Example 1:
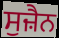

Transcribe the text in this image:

ਸੁਜ਼ੈਨ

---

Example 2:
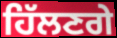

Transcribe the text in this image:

ਹਿੱਲਣਗੇ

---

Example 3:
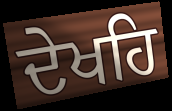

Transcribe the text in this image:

ਦੇਖਹਿ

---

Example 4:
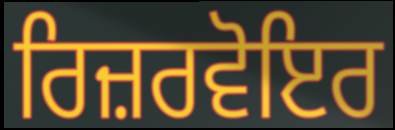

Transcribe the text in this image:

ਰਿਜ਼ਰਵੋਇਰ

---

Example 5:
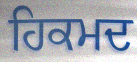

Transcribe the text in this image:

ਹਿਕਮਦ